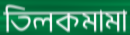
তিলকমামা